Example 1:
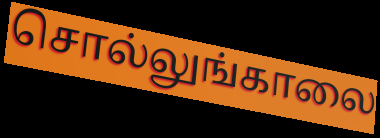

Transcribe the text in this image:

சொல்லுங்காலை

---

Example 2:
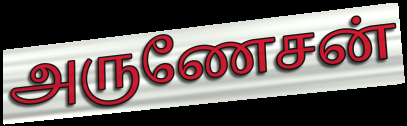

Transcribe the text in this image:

அருணேசன்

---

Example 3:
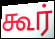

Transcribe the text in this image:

கூர்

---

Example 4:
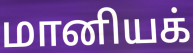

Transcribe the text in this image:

மானியக்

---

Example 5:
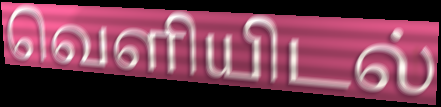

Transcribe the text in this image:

வெளியிடல்